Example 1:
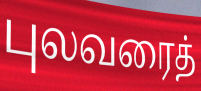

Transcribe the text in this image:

புலவரைத்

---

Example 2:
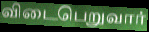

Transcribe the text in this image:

விடைபெறுவார்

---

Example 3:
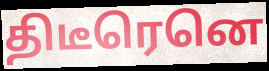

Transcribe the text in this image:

திடீரெனெ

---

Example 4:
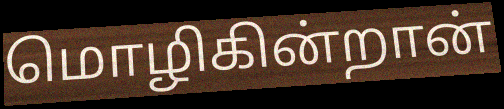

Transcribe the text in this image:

மொழிகின்றான்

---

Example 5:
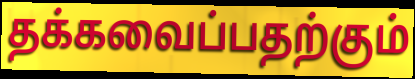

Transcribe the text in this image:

தக்கவைப்பதற்கும்